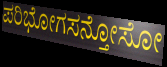
ಪರಿಭೋಗಸನ್ತೋಸೋ